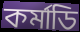
কর্মাডি